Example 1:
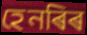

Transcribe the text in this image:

হেনৰিৰ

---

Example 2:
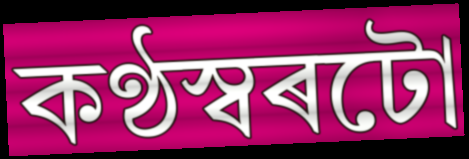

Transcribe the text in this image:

কণ্ঠস্বৰটো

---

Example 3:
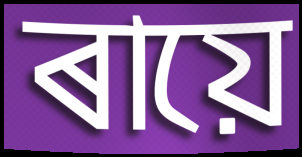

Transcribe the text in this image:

ৰায়ে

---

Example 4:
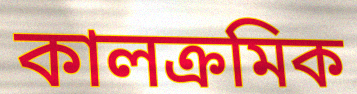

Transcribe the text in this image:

কালক্ৰমিক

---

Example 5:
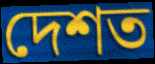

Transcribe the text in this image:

দেশত